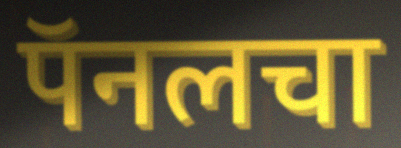
पॅनलचा